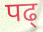
पढ्